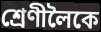
শ্ৰেণীলৈকে